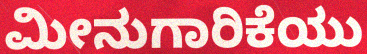
ಮೀನುಗಾರಿಕೆಯು